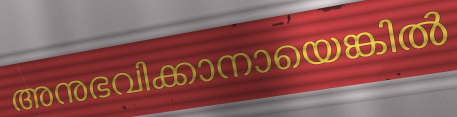
അനുഭവിക്കാനായെങ്കിൽ